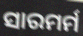
ସାରମର୍ମ